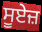
ਸੂਏਜ਼